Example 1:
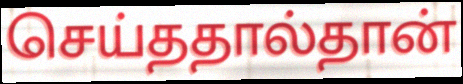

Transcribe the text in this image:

செய்ததால்தான்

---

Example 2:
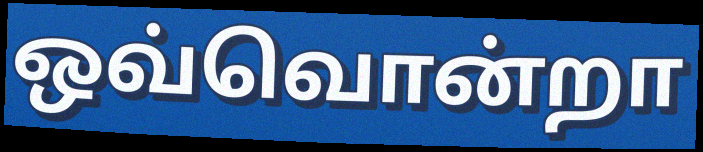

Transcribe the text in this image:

ஒவ்வொன்றா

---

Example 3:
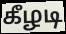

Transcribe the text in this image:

கீழடி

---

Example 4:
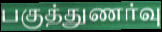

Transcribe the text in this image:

பகுத்துணர்வு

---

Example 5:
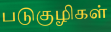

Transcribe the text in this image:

படுகுழிகள்